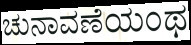
ಚುನಾವಣೆಯಂಥ